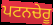
ਪਟਨਚੇਰੂ